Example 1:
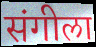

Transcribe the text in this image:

संगीला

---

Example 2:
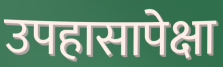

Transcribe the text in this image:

उपहासापेक्षा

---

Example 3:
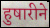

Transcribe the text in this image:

हुषारीने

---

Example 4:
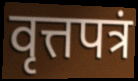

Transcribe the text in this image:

वृत्तपत्रं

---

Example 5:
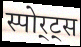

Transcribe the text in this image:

स्पोर्ट्स